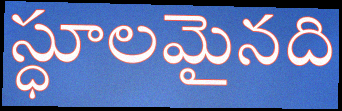
స్ధూలమైనది